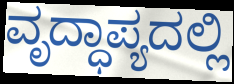
ವೃದ್ಧಾಪ್ಯದಲ್ಲಿ